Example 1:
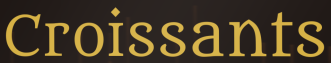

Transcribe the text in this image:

Croissants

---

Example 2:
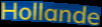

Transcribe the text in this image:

Hollande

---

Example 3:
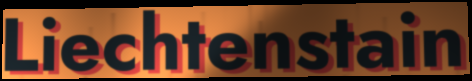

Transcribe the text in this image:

Liechtenstain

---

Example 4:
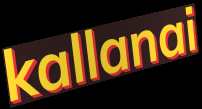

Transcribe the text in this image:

kallanai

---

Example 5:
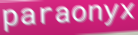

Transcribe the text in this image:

paraonyx